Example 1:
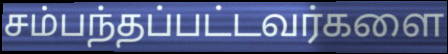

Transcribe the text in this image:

சம்பந்தப்பட்டவர்களை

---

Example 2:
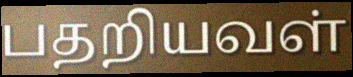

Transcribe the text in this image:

பதறியவள்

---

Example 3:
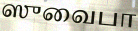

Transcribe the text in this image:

ஸுவைபா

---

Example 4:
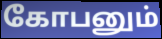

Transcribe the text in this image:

கோபனும்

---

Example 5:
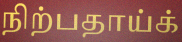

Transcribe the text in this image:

நிற்பதாய்க்